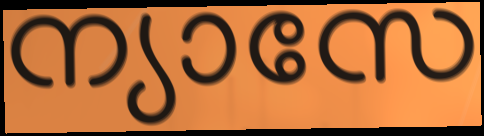
ന്യാസേ